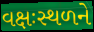
વક્ષઃસ્થળને